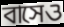
বাসেও